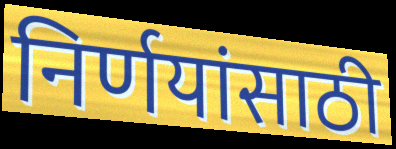
निर्णयांसाठी